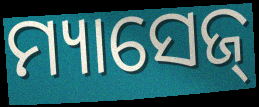
ମ୍ୟାସେଜ୍